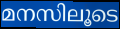
മനസിലൂടെ